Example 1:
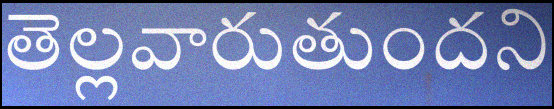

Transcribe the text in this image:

తెల్లవారుతుందని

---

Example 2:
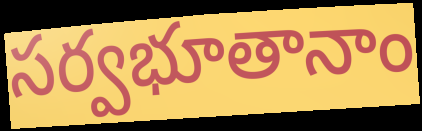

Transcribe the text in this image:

సర్వభూతానాం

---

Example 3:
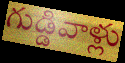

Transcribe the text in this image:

గుడ్డివాళ్లు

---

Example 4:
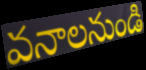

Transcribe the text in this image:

వనాలనుండి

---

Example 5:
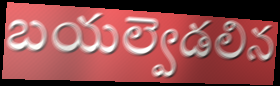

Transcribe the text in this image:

బయల్వెడలిన